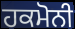
ਹਕਮੋਨੀ